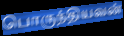
பொருந்தியவன்